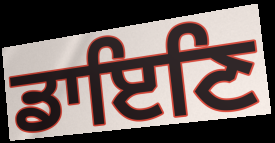
ਡਾਇਣਿ